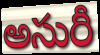
అసురీ